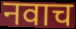
नवाच